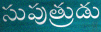
సుపుత్రుడు